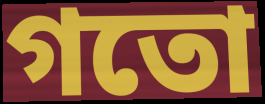
গতো